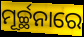
ମୂର୍ଚ୍ଛନାରେ